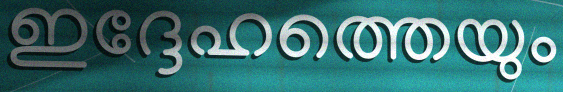
ഇദ്ദേഹത്തെയും